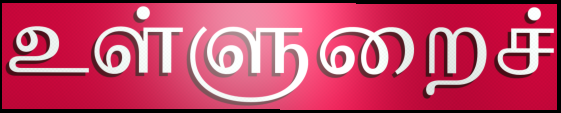
உள்ளுறைச்